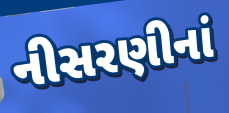
નીસરણીનાં